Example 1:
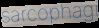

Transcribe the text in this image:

sarcophagi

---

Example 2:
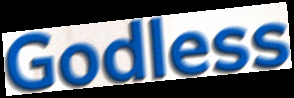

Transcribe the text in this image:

Godless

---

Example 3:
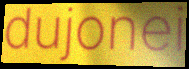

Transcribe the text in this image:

dujonei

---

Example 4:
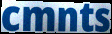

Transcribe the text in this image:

cmnts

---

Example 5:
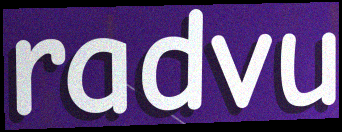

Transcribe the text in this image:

radvu